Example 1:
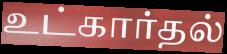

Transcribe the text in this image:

உட்கார்தல்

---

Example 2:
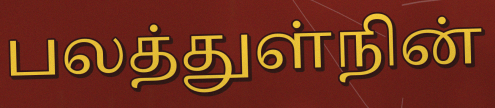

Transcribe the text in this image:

பலத்துள்நின்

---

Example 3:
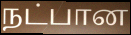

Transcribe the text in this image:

நட்பான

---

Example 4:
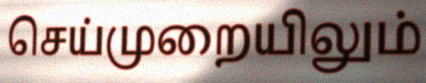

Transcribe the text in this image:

செய்முறையிலும்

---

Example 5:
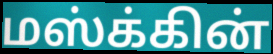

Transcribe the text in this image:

மஸ்க்கின்